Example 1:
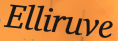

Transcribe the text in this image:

Elliruve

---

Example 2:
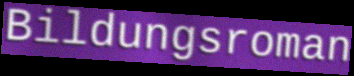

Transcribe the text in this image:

Bildungsroman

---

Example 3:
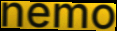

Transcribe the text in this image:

nemo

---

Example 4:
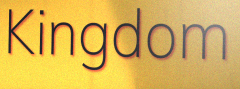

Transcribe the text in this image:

Kingdom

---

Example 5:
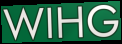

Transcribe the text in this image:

WIHG